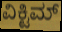
ವಿಕ್ಟಿಮ್